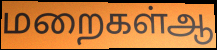
மறைகள்ஆ